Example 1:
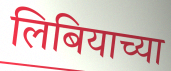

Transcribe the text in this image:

लिबियाच्या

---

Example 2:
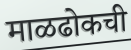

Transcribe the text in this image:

माळढोकची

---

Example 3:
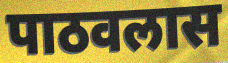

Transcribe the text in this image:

पाठवलास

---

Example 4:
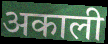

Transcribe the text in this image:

अकाली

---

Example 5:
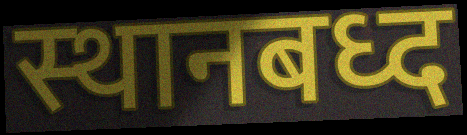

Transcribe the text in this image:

स्थानबध्द